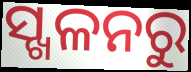
ସ୍ଖଳନରୁ